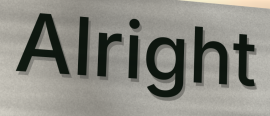
Alright